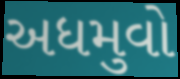
અધમુવો